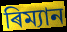
ৰিম্যান